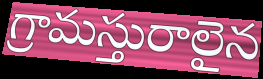
గ్రామస్తురాలైన